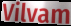
Vilvam